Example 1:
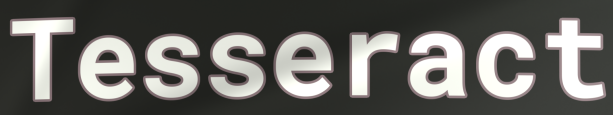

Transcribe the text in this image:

Tesseract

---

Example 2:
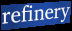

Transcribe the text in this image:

refinery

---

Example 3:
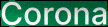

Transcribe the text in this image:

Corona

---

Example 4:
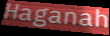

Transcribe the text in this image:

Haganah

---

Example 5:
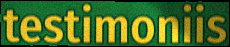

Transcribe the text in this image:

testimoniis